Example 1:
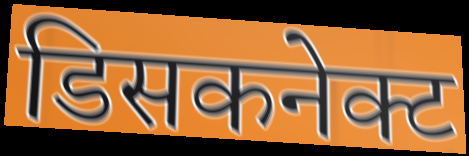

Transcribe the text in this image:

डिसकनेक्ट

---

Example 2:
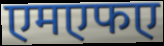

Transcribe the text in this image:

एमएफए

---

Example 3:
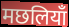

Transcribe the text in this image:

मछलियाँ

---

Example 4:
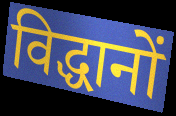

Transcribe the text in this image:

विद्धानों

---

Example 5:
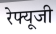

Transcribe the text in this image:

रेफ्यूजी